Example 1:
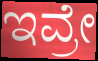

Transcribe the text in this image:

ಇವ್ರೇ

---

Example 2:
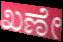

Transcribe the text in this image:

ಖಣೇ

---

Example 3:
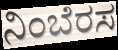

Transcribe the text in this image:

ನಿಂಬೆರಸ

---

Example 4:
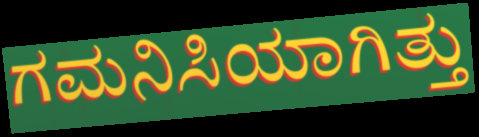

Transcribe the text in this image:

ಗಮನಿಸಿಯಾಗಿತ್ತು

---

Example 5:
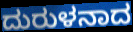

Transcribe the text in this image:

ದುರುಳನಾದ